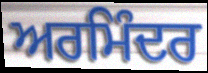
ਅਰਮਿੰਦਰ